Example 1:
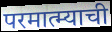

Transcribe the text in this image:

परमात्म्याची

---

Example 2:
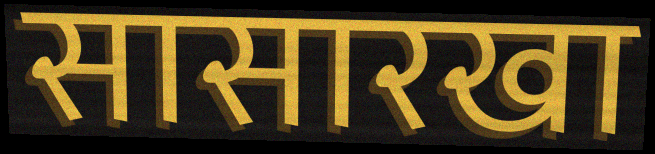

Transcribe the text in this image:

सासारखा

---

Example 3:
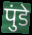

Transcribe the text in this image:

पुंडे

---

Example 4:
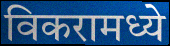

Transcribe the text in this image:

विकरामध्ये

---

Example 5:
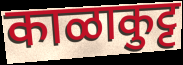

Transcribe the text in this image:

काळाकुट्ट